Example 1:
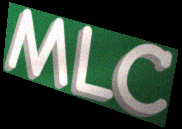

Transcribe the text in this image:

MLC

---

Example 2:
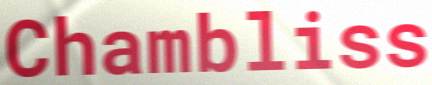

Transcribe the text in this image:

Chambliss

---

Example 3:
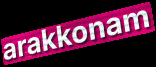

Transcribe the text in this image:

arakkonam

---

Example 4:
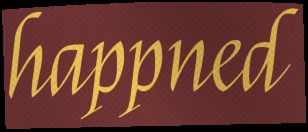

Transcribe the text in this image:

happned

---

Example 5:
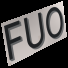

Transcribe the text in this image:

FUO